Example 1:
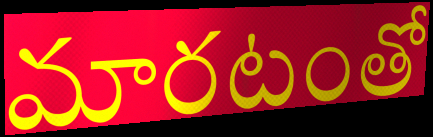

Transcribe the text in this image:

మారటంతో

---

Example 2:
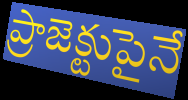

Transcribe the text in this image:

ప్రాజెక్టుపైనే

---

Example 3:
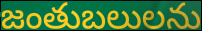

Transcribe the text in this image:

జంతుబలులను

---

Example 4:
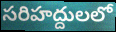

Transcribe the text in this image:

సరిహద్దులలో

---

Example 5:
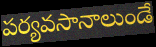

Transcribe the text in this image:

పర్యవసానాలుండే